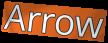
Arrow